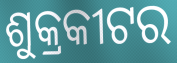
ଶୁକ୍ରକୀଟର